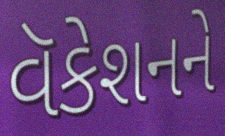
વૅકેશનને